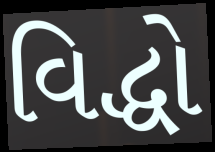
વિદ્ધો